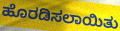
ಹೊರಡಿಸಲಾಯಿತು